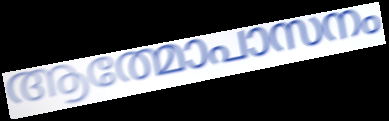
ആത്മോപാസനം